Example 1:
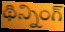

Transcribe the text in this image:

థిన్నింగ్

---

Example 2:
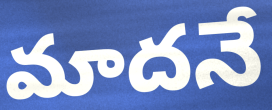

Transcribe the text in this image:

మాదనే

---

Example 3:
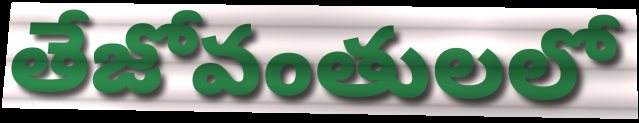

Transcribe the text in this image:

తేజోవంతులలో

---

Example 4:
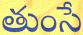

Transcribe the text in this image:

తుంసే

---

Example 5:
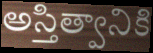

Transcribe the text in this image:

అస్తిత్వానికి